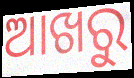
ଆଖରୁ